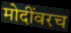
मोदींवरच